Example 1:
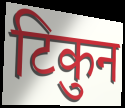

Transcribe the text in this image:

टिकुन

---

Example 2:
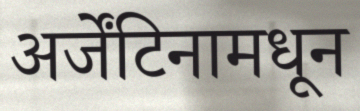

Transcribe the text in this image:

अर्जेंटिनामधून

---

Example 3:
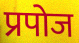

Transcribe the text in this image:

प्रपोज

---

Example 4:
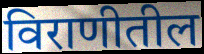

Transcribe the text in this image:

विराणीतील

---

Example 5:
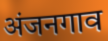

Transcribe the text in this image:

अंजनगाव